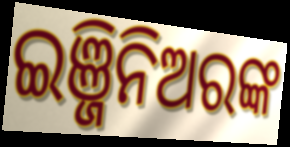
ଇଞ୍ଜିନିଅରଙ୍କ